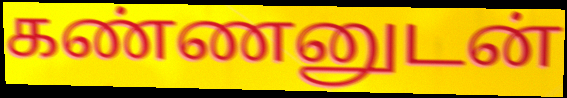
கண்ணனுடன்